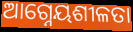
ଆଗ୍ନେୟଶୀଳତା